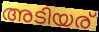
അടിയര്